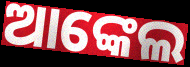
ଆଙ୍କେଲ